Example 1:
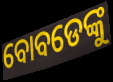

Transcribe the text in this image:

ବୋବଡେଙ୍କୁ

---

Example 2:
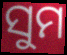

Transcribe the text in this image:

ସୁମ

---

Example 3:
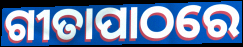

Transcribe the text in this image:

ଗୀତାପାଠରେ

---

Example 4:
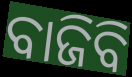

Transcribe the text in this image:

ବାଜିବି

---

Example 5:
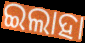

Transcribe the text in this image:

ଇଲାହା